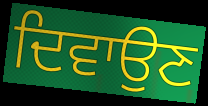
ਦਿਵਾਉਣ